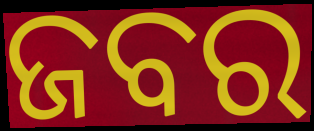
ଜବର